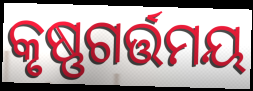
କୃଷ୍ଣଗର୍ତ୍ତମୟ